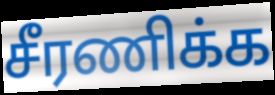
சீரணிக்க